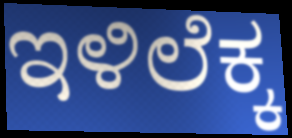
ಇಳಿಲೆಕ್ಕ